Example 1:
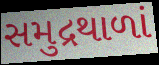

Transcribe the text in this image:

સમુદ્રથાળાં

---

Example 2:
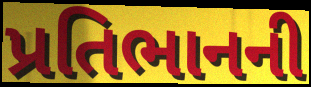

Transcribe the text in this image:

પ્રતિભાનની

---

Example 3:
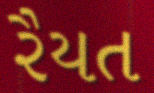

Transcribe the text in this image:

રૈયત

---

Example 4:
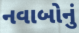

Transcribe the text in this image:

નવાબોનું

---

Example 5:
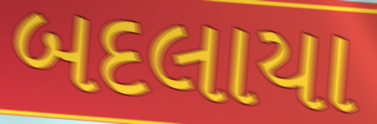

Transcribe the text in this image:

બદલાયા